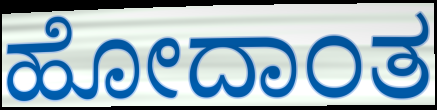
ಹೋದಾಂತ